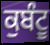
ਕੁਬੰਟੂ